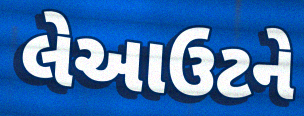
લેઆઉટને